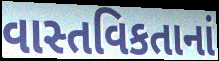
વાસ્તવિકતાનાં